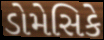
ડોમેસિકે